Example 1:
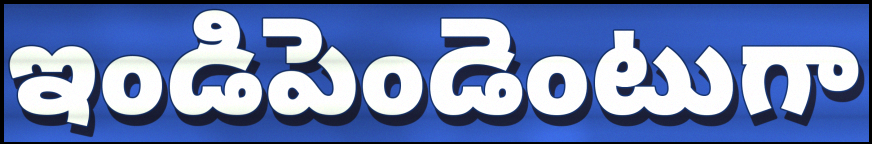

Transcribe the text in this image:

ఇండిపెండెంటుగా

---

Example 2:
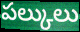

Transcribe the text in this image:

పల్కులు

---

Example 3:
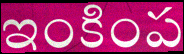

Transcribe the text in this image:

ఇంకింప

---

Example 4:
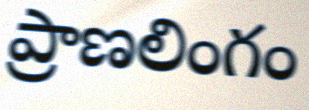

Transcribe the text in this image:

ప్రాణలింగం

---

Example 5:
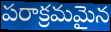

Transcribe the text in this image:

పరాక్రమమైన